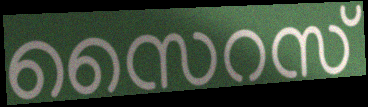
സൈറസ്